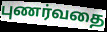
புணர்வதை